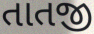
તાતજી